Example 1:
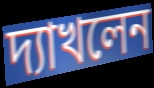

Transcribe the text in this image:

দ্যাখলেন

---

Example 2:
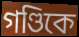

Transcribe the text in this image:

গণ্ডিকে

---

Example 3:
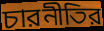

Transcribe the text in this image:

চারনীতির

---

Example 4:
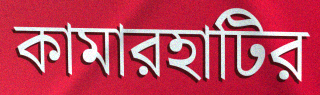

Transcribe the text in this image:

কামারহাটির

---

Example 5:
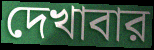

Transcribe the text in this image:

দেখাবার